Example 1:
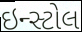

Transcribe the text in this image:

ઇન્સ્ટોલ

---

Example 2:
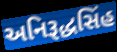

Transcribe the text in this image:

અનિરૂદ્ધસિંહ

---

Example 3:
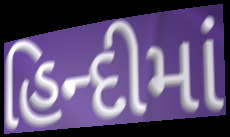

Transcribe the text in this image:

હિન્દીમાં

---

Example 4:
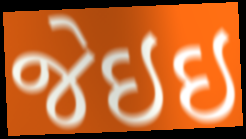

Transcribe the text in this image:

જેઇઇ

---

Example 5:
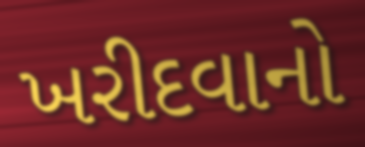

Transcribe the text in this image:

ખરીદવાનો